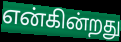
என்கின்றது